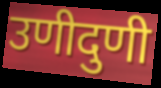
उणीदुणी